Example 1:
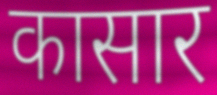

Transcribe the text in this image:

कासार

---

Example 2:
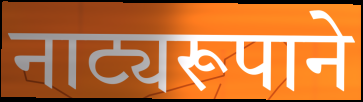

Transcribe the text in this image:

नाट्यरूपाने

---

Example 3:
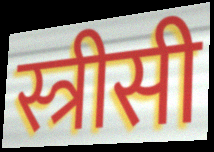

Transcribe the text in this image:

स्त्रीसी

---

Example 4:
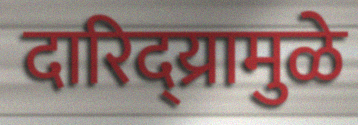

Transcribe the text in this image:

दारिद्य्रामुळे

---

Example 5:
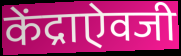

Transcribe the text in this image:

केंद्राऐवजी